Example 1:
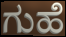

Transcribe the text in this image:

ಗುಹೆ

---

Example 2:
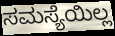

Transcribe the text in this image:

ಸಮಸ್ಯೆಯಿಲ್ಲ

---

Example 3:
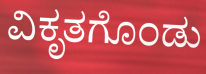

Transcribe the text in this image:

ವಿಕೃತಗೊಂಡು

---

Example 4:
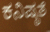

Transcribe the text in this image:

ಕನಿಷ್ಠತೆ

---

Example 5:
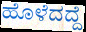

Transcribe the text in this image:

ಹೊಳೆದದ್ದೆ